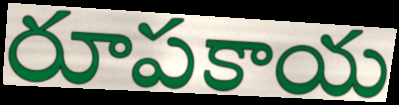
రూపకాయ